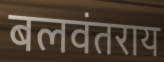
बलवंतराय